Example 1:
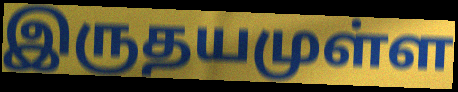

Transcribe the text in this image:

இருதயமுள்ள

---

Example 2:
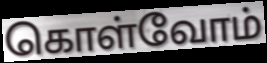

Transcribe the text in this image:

கொள்வோம்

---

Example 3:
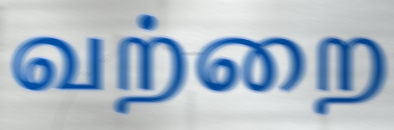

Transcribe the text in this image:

வற்றை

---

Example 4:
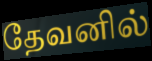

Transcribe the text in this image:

தேவனில்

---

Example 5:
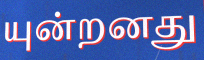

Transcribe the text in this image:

யுன்றனது